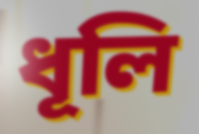
ধূলি